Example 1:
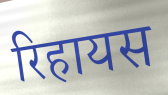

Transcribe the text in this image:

रिहायस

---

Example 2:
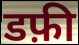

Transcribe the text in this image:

डफ़ी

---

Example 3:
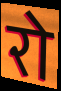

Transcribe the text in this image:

रो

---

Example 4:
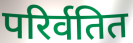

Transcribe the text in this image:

परिर्वतित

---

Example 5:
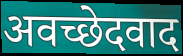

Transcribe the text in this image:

अवच्छेदवाद